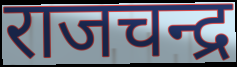
राजचन्द्र